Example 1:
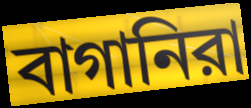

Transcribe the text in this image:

বাগানিরা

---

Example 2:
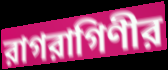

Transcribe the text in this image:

রাগরাগিণীর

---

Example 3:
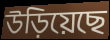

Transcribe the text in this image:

উড়িয়েছে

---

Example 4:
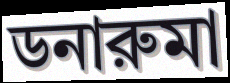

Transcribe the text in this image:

ডনারুমা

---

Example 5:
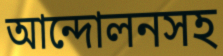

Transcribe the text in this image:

আন্দোলনসহ